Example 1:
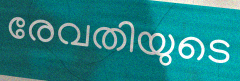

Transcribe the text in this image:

രേവതിയുടെ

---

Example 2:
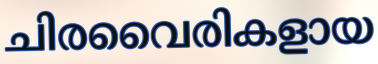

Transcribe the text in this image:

ചിരവൈരികളായ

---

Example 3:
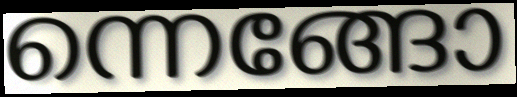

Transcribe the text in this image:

ന്നെങ്ങോ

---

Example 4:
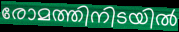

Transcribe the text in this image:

രോമത്തിനിടയിൽ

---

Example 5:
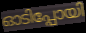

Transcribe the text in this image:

ഓടിപ്പോയി